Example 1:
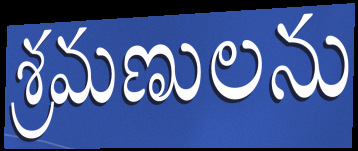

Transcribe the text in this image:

శ్రమణులను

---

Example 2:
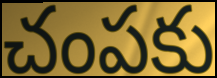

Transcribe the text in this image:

చంపకు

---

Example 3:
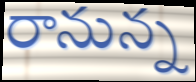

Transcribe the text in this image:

రానున్న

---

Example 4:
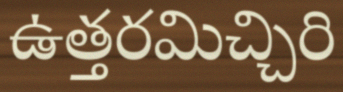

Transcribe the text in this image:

ఉత్తరమిచ్చిరి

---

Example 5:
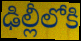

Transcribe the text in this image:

ఢిల్లీలోకి